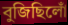
বুজিছিলোঁ